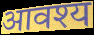
आवश्य